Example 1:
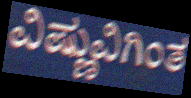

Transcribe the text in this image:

ವಿಷ್ಣುವಿಗಿಂತ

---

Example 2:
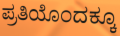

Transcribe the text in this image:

ಪ್ರತಿಯೊಂದಕ್ಕೂ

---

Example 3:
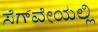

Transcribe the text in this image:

ಸೆಗ್‌ವೇಯಲ್ಲಿ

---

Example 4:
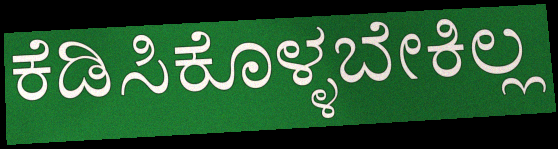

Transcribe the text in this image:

ಕೆಡಿಸಿಕೊಳ್ಳಬೇಕಿಲ್ಲ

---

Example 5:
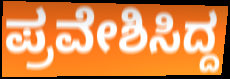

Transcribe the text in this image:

ಪ್ರವೇಶಿಸಿದ್ದ